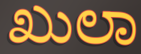
ಖುಲಾ